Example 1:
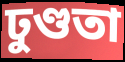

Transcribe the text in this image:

ঢুণ্ডতা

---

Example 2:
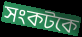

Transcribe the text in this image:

সংকটকে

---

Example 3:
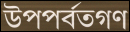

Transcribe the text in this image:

উপপর্বতগণ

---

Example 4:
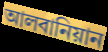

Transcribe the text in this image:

আলবানিয়ান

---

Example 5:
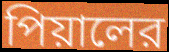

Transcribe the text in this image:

পিয়ালের